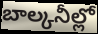
బాల్కనీల్లో